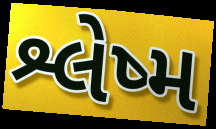
શ્લેષ્મ